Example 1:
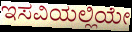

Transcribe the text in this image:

ಇಸವಿಯಲ್ಲಿಯೇ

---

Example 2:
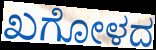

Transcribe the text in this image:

ಖಗೋಳದ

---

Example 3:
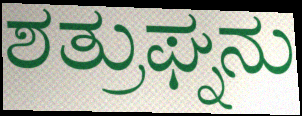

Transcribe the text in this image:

ಶತ್ರುಘ್ನನು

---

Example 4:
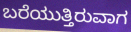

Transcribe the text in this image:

ಬರೆಯುತ್ತಿರುವಾಗ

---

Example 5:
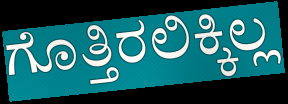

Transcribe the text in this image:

ಗೊತ್ತಿರಲಿಕ್ಕಿಲ್ಲ